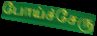
போய்ச்சேரு